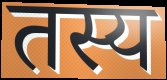
तस्य